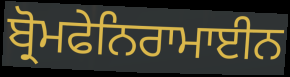
ਬ੍ਰੋਮਫੇਨਿਰਾਮਾਈਨ